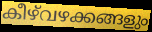
കീഴ്‌വഴക്കങ്ങളും